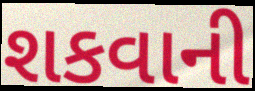
શકવાની